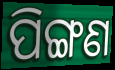
ପିଙ୍ଗଣ